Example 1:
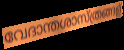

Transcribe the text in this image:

വേദാന്തശാസ്ത്രങ്ങള്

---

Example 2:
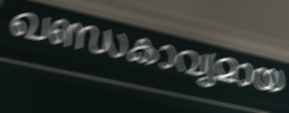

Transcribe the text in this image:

ഖണ്ഡകാവ്യമായ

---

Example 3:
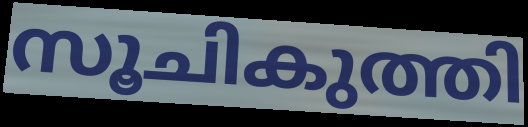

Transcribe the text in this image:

സൂചികുത്തി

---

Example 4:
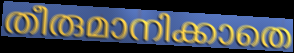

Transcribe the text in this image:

തീരുമാനിക്കാതെ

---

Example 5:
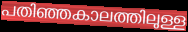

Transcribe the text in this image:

പതിഞ്ഞകാലത്തിലുള്ള